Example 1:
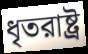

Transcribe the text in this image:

ধৃতরাষ্ট্র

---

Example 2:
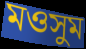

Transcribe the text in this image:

মওসুম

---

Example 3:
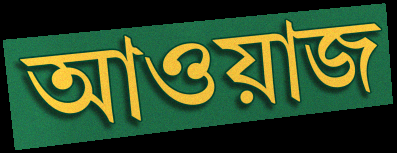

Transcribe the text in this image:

আওয়াজ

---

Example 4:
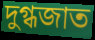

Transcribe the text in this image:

দুগ্ধজাত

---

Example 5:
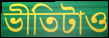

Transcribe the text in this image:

ভীতিটাও